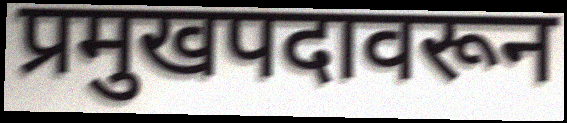
प्रमुखपदावरून